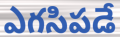
ఎగసిపడే